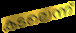
കടലെന്ന്